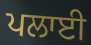
ਪਲਾਈ